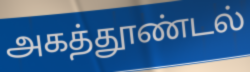
அகத்தூண்டல்